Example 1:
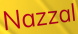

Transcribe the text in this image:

Nazzal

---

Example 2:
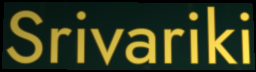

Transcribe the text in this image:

Srivariki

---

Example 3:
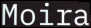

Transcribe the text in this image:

Moira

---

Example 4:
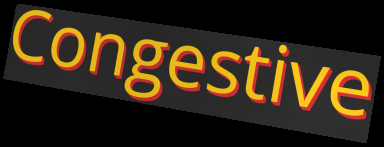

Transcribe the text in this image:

Congestive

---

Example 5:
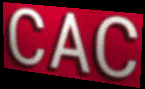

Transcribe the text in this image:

CAC